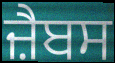
ਜ਼ੈਬਸ